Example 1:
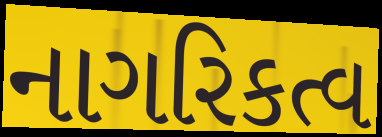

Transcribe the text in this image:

નાગરિકત્વ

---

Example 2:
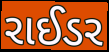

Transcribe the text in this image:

રાઈડર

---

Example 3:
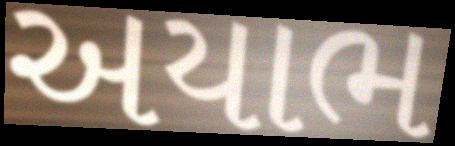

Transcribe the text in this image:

અયાભ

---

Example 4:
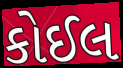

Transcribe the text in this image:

કોઈલ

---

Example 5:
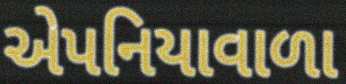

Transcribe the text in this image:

એપનિયાવાળા